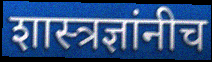
शास्त्रज्ञांनीच